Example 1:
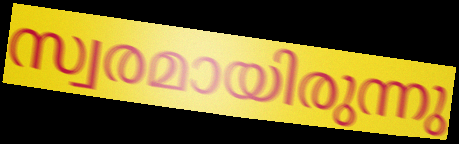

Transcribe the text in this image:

സ്വരമായിരുന്നു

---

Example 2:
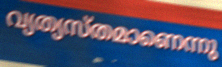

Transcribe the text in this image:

വ്യത്യസ്തമാണെന്നു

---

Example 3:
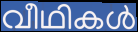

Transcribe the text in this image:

വീഥികൾ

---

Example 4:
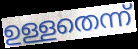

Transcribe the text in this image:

ഉള്ളതെന്ന്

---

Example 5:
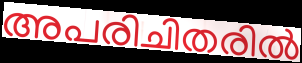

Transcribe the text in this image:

അപരിചിതരിൽ